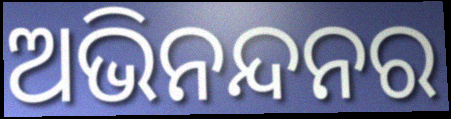
ଅଭିନନ୍ଦନର